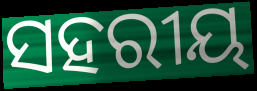
ସହରୀୟ